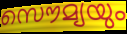
സൌമ്യയും